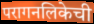
परागनलिकेची